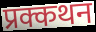
प्रक्कथन